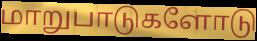
மாறுபாடுகளோடு